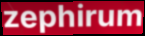
zephirum